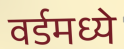
वर्डमध्ये